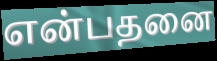
என்பதனை